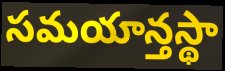
సమయాన్తస్థా